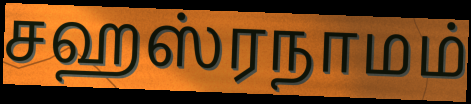
சஹஸ்ரநாமம்